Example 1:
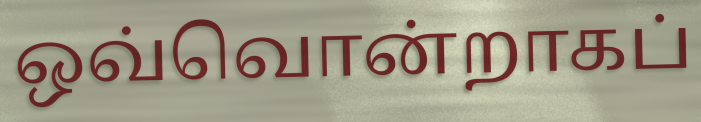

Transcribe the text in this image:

ஒவ்வொன்றாகப்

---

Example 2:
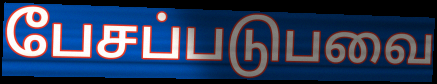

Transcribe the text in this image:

பேசப்படுபவை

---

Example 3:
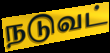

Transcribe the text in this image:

நடுவட்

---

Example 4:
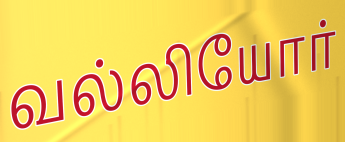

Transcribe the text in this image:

வல்லியோர்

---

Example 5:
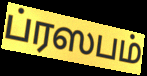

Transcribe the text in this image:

ப்ரஸபம்